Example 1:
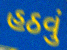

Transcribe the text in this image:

હઠવું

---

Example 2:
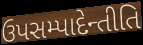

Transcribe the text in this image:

ઉપસમ્પાદેન્તીતિ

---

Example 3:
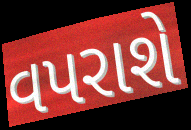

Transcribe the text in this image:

વપરાશે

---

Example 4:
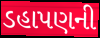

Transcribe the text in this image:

ડહાપણની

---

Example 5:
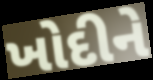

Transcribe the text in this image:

ખોદીને